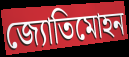
জ্যোতিমোহন